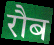
रौब